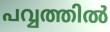
പവ്വത്തിൽ